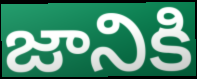
జానికి